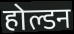
होल्डन